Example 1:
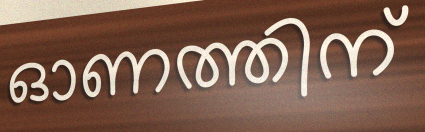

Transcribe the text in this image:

ഓണത്തിന്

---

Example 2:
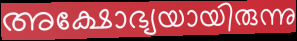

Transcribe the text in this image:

അക്ഷോഭ്യയായിരുന്നു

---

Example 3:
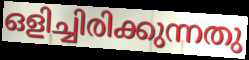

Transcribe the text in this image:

ഒളിച്ചിരിക്കുന്നതു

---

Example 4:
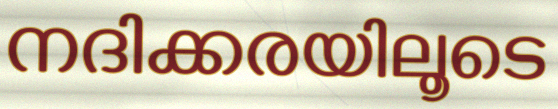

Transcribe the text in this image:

നദിക്കരയിലൂടെ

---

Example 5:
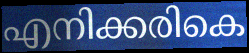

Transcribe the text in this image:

എനിക്കരികെ